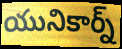
యునికార్న్